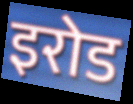
इरोड